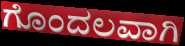
ಗೊಂದಲವಾಗಿ